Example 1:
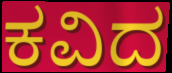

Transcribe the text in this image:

ಕವಿದ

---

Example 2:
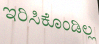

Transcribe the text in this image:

ಇರಿಸಿಕೊಂಡಿಲ್ಲ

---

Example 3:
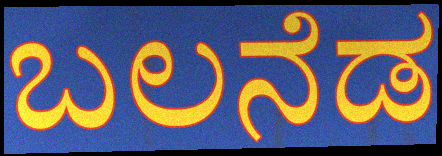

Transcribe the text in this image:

ಬಲನೆಡ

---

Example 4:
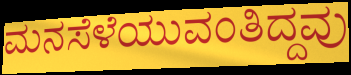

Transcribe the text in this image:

ಮನಸೆಳೆಯುವಂತಿದ್ದವು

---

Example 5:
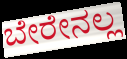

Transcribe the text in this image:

ಬೇರೇನಲ್ಲ